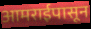
आमराईपासून